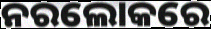
ନରଲୋକରେ